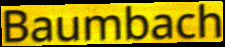
Baumbach